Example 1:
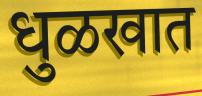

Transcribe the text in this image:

धुळखात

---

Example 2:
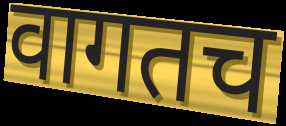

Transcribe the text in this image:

वागतच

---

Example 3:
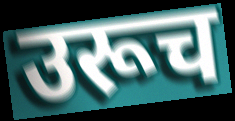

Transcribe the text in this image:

उरूच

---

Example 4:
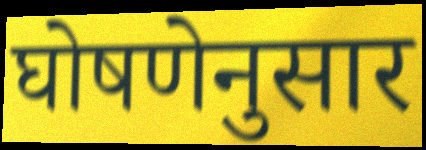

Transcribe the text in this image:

घोषणेनुसार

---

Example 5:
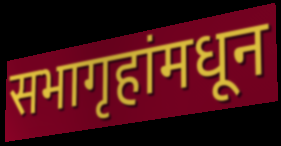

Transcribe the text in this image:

सभागृहांमधून